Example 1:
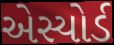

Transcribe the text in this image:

એસ્યોર્ડ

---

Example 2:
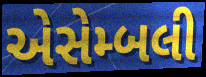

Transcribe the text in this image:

એસેમ્બલી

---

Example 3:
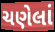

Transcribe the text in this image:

ચણેલાં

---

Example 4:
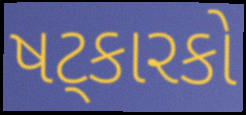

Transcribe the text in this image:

ષટ્કારકો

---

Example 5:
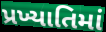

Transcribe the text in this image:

પ્રખ્યાતિમાં